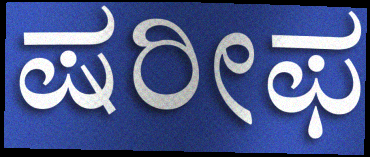
ಷರೀಫ